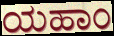
ಯಹಾಂ